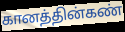
கானத்தின்கண்